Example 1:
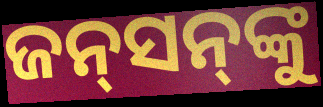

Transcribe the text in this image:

ଜନ୍‍ସନ୍‍ଙ୍କୁ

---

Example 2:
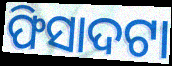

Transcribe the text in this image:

ଫିସାଦଟା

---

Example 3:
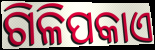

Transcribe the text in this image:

ଗିଳିପକାଏ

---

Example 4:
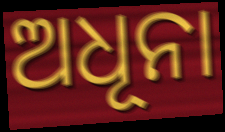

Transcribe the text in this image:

ଅଧୂନା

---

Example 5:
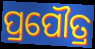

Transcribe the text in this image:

ପ୍ରପୌତ୍ର